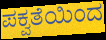
ಪಕ್ವತೆಯಿಂದ